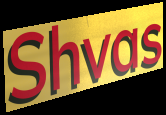
Shvas